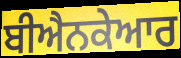
ਬੀਐਨਕੇਆਰ